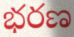
భరణ